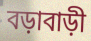
বড়াবাড়ী